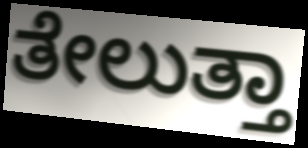
ತೇಲುತ್ತಾ